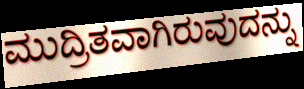
ಮುದ್ರಿತವಾಗಿರುವುದನ್ನು